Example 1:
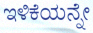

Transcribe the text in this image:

ಇಳಿಕೆಯನ್ನೇ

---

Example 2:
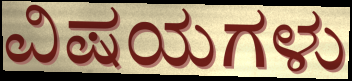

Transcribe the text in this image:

ವಿಷಯಗಳು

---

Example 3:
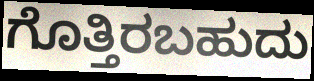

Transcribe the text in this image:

ಗೊತ್ತಿರಬಹುದು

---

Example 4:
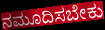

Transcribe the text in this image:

ನಮೂದಿಸಬೇಕು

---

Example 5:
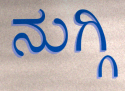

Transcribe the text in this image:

ನುಗ್ಗಿ